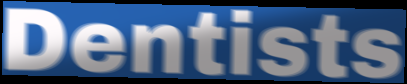
Dentists